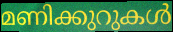
മണിക്കുറുകൾ